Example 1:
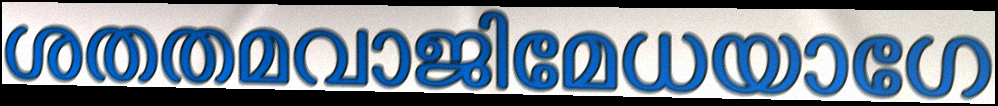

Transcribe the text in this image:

ശതതമവാജിമേധയാഗേ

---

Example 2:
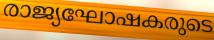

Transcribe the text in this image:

രാജ്യഘോഷകരുടെ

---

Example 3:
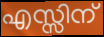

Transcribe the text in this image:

എസ്സിന്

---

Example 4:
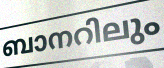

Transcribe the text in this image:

ബാനറിലും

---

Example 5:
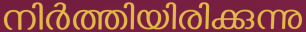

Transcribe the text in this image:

നിർത്തിയിരിക്കുന്നു